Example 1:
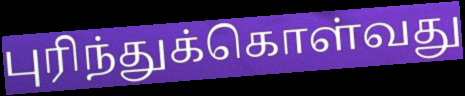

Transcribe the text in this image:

புரிந்துக்கொள்வது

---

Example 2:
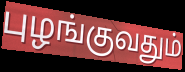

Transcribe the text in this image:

புழங்குவதும்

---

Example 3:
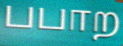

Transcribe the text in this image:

பபாற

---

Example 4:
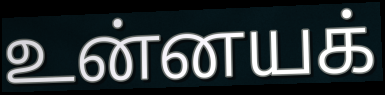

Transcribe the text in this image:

உன்னயக்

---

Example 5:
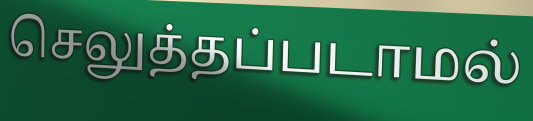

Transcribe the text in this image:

செலுத்தப்படாமல்